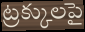
ట్రక్కులపై